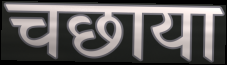
चछाया